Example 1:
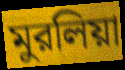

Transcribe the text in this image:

মুরলিয়া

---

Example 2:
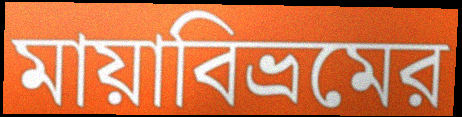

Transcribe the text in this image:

মায়াবিভ্রমের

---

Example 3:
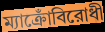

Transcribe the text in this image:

ম্যাক্রোঁবিরোধী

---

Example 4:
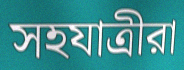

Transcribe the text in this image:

সহযাত্রীরা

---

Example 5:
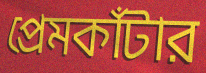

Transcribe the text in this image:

প্রেমকাঁটার